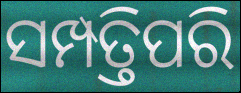
ସମ୍ପତ୍ତିପରି